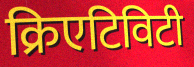
क्रिएटिविटी